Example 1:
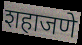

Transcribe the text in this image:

शहाजणे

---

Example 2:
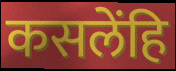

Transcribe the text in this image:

कसलेंहि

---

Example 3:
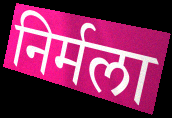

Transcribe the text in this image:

निर्मला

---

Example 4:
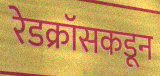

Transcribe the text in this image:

रेडक्रॉसकडून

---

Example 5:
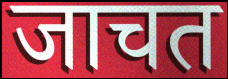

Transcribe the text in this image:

जाचत